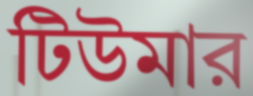
টিউমার